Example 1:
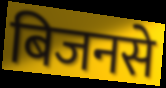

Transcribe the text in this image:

बिजनसे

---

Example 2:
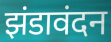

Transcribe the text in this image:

झंडावंदन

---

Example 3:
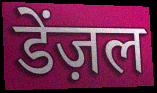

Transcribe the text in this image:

डेंज़ल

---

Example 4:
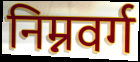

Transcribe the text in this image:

निम्नवर्ग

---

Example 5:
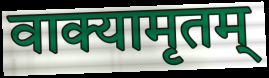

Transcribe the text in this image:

वाक्यामृतम्